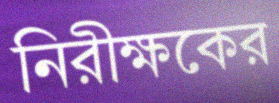
নিরীক্ষকের